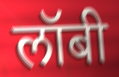
लॉबी